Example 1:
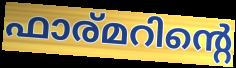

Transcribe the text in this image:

ഫാര്മറിന്റെ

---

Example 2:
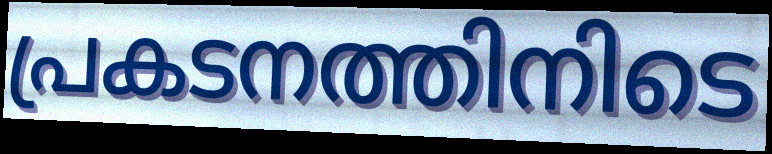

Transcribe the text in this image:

പ്രകടനത്തിനിടെ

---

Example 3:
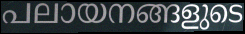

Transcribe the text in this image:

പലായനങ്ങളുടെ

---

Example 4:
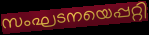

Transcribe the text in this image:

സംഘടനയെപ്പറ്റി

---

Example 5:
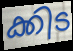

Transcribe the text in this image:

ക്കിട